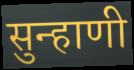
सुन्हाणी